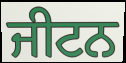
ਜੀਟਨ